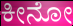
ಕೀನೋ